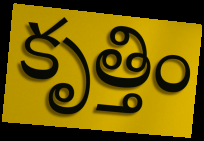
కృత్తిం